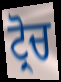
ਟ੍ਰੋਚ